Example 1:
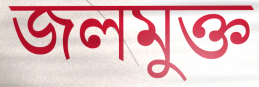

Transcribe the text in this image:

জলমুক্ত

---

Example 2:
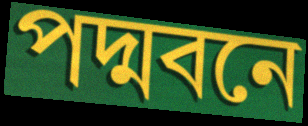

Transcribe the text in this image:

পদ্মবনে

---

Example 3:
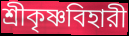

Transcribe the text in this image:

শ্রীকৃষ্ণবিহারী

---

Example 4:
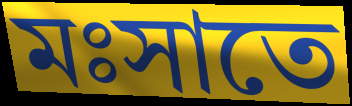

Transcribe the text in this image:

মঃসাতে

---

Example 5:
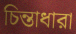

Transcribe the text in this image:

চিন্তাধারা